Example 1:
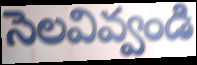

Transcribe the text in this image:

సెలవివ్వండి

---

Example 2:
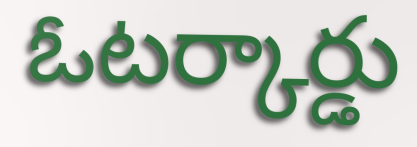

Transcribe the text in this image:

ఓటర్కార్డు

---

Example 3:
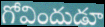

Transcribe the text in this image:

గోవిందుడూ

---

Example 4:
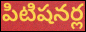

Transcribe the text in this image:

పిటిషనర్ల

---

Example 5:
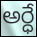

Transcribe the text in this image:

అర్ధే